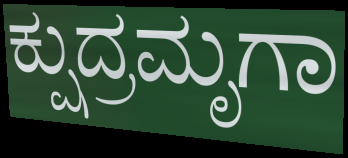
ಕ್ಷುದ್ರಮೃಗಾ